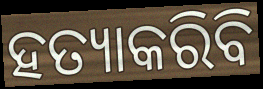
ହତ୍ୟାକରିବି